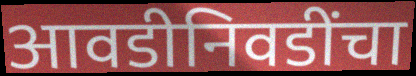
आवडीनिवडींचा